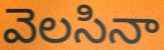
వెలసినా